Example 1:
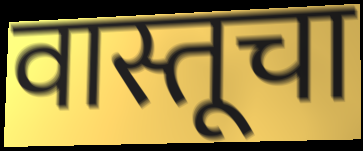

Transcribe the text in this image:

वास्तूचा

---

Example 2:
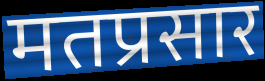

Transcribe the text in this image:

मतप्रसार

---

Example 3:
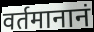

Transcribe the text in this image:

वर्तमानानं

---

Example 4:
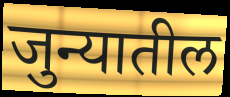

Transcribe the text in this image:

जुन्यातील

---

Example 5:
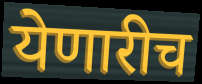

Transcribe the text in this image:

येणारीच